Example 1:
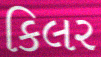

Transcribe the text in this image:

કિલર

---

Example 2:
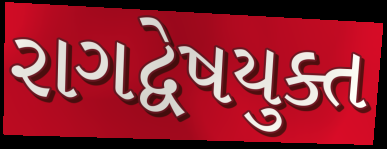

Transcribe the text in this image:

રાગદ્વેષયુક્ત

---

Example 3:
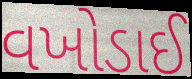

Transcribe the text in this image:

વખોડાઈ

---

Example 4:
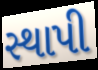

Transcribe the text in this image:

સ્થાપી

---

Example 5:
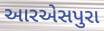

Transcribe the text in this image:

આરએસપુરા